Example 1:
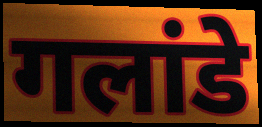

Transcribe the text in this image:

गलांडे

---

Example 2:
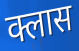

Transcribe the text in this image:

क्लास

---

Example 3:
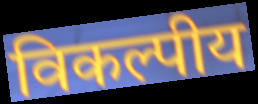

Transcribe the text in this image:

विकल्पीय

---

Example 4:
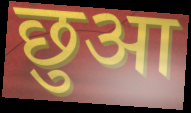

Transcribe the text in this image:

छुआ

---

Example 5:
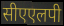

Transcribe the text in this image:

सीएएलपी